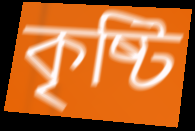
কৃষ্টি